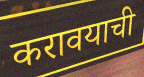
करावयाची